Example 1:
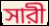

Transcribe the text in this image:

সারী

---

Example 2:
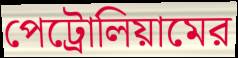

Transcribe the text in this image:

পেট্রোলিয়ামের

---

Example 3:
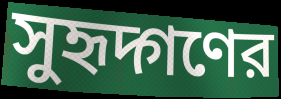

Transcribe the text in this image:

সুহৃদ্গণের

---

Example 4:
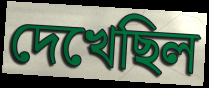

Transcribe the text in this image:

দেখেছিল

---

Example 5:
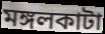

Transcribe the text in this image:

মঙ্গলকাটা